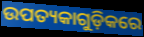
ଉପତ୍ୟକାଗୁଡ଼ିକରେ